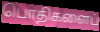
பொதிகளைப்